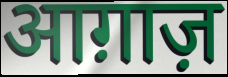
आग़ाज़